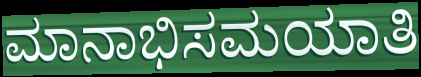
ಮಾನಾಭಿಸಮಯಾತಿ